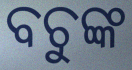
ବଚୁଙ୍କ